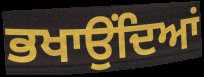
ਭਖਾਉਂਦਿਆਂ